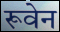
रूवेन